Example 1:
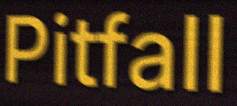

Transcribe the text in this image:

Pitfall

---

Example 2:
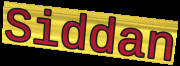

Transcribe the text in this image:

Siddan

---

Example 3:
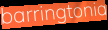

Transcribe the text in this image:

barringtonia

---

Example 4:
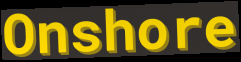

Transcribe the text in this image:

Onshore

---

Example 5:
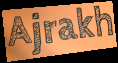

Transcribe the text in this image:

Ajrakh